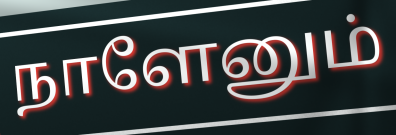
நாளேனும்